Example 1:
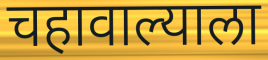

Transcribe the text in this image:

चहावाल्याला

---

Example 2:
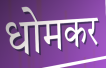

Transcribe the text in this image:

धोमकर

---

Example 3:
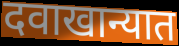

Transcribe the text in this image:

दवाखान्यात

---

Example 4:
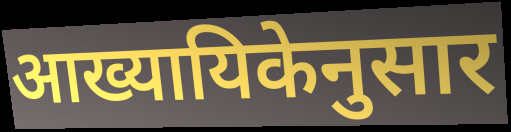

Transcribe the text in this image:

आख्यायिकेनुसार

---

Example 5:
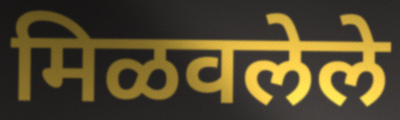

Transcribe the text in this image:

मिळवलेले